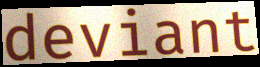
deviant